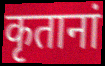
कृतानां